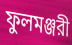
ফুলমঞ্জরী